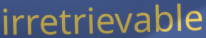
irretrievable